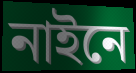
নাইনে